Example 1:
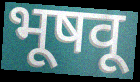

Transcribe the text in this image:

भूषवू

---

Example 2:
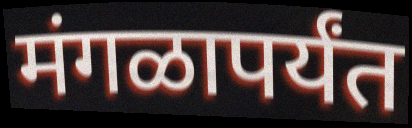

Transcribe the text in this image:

मंगळापर्यंत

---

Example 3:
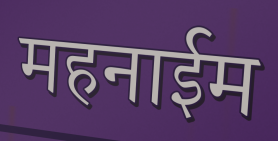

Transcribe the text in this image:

महनाईम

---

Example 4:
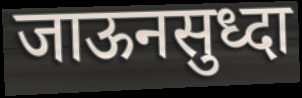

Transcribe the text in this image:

जाऊनसुध्दा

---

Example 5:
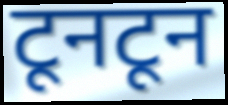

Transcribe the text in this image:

टूनटून